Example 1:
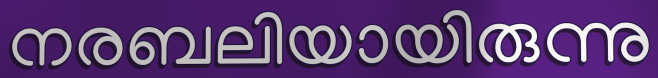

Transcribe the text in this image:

നരബലിയായിരുന്നു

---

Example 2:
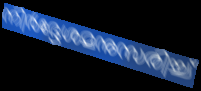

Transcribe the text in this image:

നിർദ്ദേശമനുസരിച്ച്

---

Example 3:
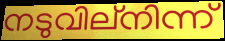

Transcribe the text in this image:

നടുവില്നിന്ന്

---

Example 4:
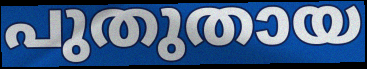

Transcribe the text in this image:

പുതുതായ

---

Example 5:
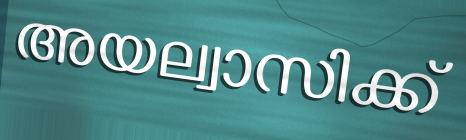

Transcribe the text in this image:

അയല്വാസിക്ക്